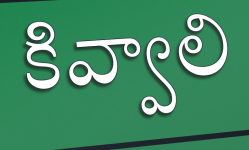
కివ్వాలి